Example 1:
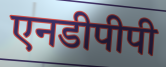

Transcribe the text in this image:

एनडीपीपी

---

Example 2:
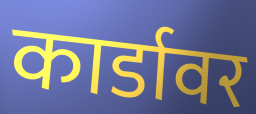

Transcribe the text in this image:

कार्डावर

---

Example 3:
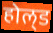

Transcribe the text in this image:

होल्ड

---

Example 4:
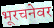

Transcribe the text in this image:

भूरचनेवर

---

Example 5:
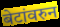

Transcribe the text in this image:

बेटांवरुन